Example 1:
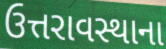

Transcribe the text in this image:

ઉત્તરાવસ્થાના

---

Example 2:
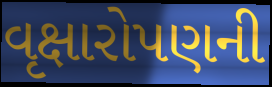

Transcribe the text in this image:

વૃક્ષારોપણની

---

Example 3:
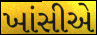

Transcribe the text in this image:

ખાંસીએ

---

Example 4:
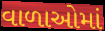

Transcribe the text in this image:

વાળાઓમાં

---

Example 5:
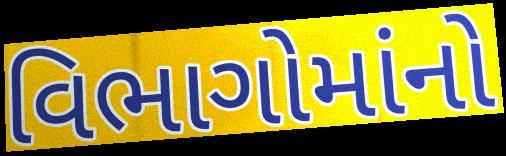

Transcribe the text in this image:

વિભાગોમાંનો